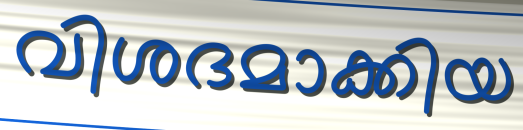
വിശദമാക്കിയ